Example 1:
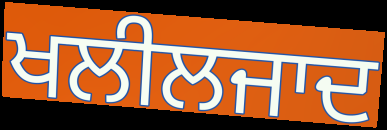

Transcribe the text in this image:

ਖਲੀਲਜਾਦ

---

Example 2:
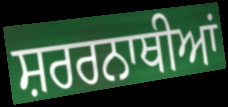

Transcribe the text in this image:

ਸ਼ਰਰਨਾਥੀਆਂ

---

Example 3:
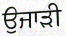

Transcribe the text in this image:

ਉਜਾੜੀ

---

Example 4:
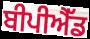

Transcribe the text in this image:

ਬੀਪੀਐੱਡ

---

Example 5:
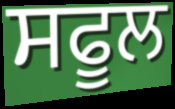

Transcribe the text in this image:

ਸਫੂਲ